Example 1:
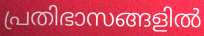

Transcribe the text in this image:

പ്രതിഭാസങ്ങളിൽ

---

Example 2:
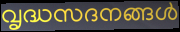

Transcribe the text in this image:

വൃദ്ധസദനങ്ങൾ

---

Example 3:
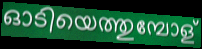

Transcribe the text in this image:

ഓടിയെത്തുമ്പോള്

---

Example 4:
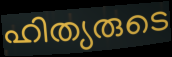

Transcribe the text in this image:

ഹിത്യരുടെ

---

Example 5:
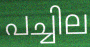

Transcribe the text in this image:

പച്ചില